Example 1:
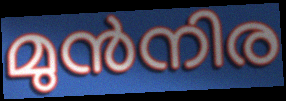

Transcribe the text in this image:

മുൻനിര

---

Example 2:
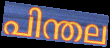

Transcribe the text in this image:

പിന്തല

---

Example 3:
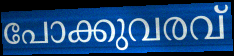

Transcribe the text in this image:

പോക്കുവരവ്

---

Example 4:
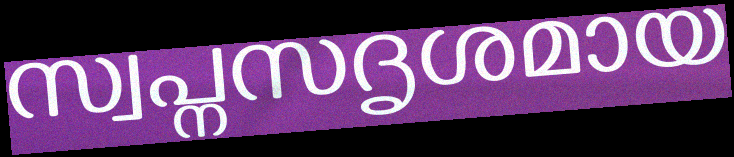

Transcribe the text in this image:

സ്വപ്നസദൃശമായ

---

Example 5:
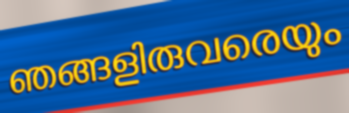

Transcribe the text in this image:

ഞങ്ങളിരുവരെയും